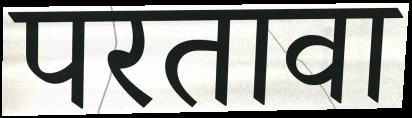
परतावा